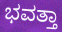
ಭವತ್ತಾ